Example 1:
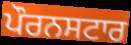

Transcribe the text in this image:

ਪੌਰਨਸਟਾਰ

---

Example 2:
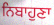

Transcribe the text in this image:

ਨਿਬਾਹੁਣਾ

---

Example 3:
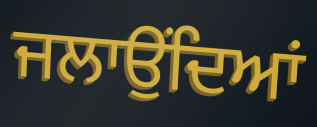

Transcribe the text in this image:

ਜਲਾਉਂਦਿਆਂ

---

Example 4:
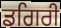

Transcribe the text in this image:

ਡਗਿਰੀ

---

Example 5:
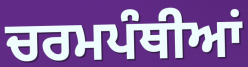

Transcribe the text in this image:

ਚਰਮਪੰਥੀਆਂ